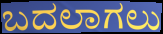
ಬದಲಾಗಲು